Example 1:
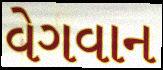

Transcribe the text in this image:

વેગવાન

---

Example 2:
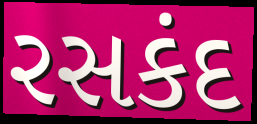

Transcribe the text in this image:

રસકંદ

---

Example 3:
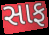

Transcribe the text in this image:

સાફ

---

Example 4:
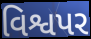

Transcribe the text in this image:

વિશ્વપર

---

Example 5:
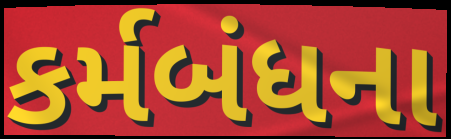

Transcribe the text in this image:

કર્મબંધના